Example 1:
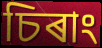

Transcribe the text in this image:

চিৰাং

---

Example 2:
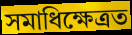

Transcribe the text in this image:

সমাধিক্ষেত্ৰত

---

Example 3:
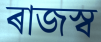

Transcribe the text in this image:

ৰাজস্ব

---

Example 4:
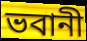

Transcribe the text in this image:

ভবানী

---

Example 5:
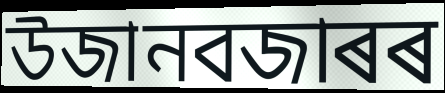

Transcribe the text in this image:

উজানবজাৰৰ